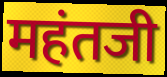
महंतजी